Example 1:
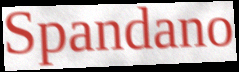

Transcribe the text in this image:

Spandano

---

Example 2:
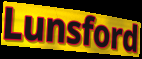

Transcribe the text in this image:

Lunsford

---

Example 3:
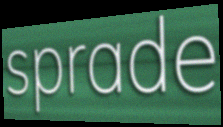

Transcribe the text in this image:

sprade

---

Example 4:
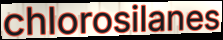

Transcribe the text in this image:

chlorosilanes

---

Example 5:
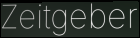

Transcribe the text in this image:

Zeitgeber